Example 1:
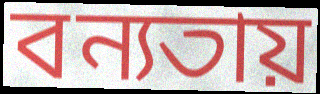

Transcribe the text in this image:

বন্যতায়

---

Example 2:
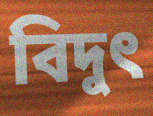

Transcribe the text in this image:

বিদুৎ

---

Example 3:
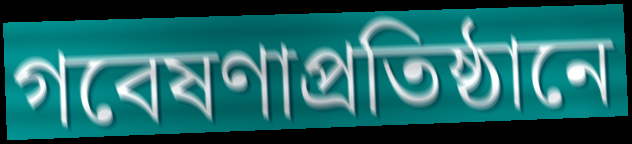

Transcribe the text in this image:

গবেষণাপ্রতিষ্ঠানে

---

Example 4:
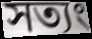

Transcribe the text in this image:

সত্যং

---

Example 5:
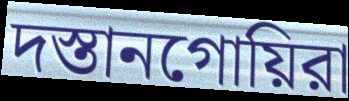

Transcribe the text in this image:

দস্তানগোয়িরা